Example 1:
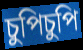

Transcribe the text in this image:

চুপিচুপি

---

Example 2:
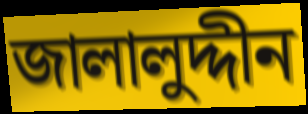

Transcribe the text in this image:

জালালুদ্দীন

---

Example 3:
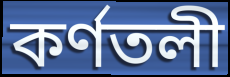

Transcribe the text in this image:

কর্ণতলী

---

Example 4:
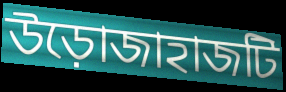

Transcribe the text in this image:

উড়োজাহাজটি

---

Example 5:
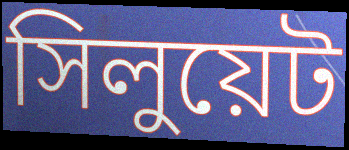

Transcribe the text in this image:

সিলুয়েট